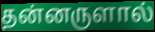
தன்னருளால்